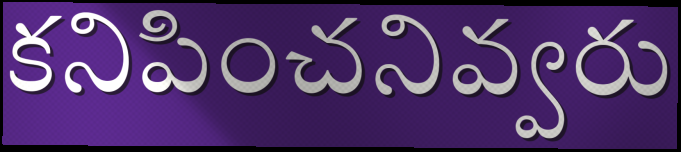
కనిపించనివ్వరు